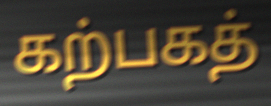
கற்பகத்